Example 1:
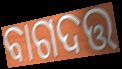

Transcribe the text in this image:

ବାଗଦତ୍ତ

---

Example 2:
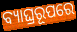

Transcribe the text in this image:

ବ୍ୟାଘ୍ରରୂପରେ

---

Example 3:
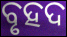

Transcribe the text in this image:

ବୃହଦ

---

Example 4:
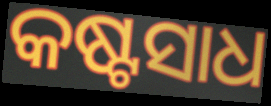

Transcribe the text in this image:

କଷ୍ଟସାଧ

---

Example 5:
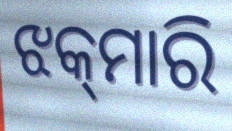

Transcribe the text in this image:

ଝକ୍‌ମାରି